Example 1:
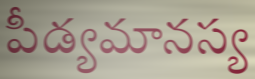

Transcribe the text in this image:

పీడ్యమానస్య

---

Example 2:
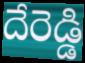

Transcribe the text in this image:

దేరెడ్డి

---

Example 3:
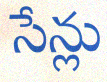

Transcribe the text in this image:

సేన్లు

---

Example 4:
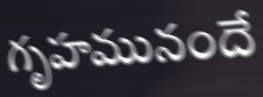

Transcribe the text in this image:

గృహమునందే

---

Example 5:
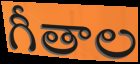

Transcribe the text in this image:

గీతాల